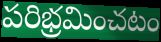
పరిభ్రమించటం